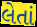
લેતાં